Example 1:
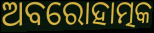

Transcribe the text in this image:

ଅବରୋହାତ୍ମକ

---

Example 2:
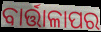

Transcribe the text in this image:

ବାର୍ତ୍ତାଳାପର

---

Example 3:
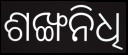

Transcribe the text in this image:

ଶଙ୍ଖନିଧି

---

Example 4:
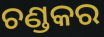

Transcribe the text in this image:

ଚଣ୍ଡକର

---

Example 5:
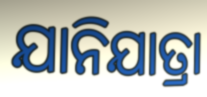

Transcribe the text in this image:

ଯାନିଯାତ୍ରା